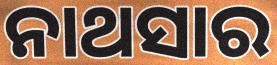
ନାଥସାର